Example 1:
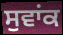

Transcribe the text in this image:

ਸੁਵਾਂਕ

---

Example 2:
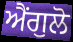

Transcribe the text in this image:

ਐਂਗੁਲੋ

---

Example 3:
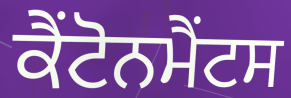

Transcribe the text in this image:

ਕੈਂਟੋਨਮੈਂਟਸ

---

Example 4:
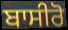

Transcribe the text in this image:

ਬਾਸੀਰੋ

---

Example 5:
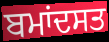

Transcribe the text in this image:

ਬਮਾਂਦਸਤ